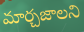
మార్చజాలని